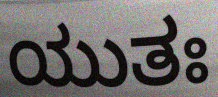
ಯುತಃ